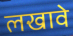
लखावे